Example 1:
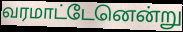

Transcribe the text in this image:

வரமாட்டேனென்று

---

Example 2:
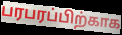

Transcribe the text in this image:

பரபரப்பிற்காக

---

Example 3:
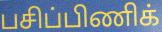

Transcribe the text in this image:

பசிப்பிணிக்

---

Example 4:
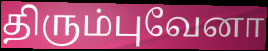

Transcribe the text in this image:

திரும்புவேனா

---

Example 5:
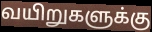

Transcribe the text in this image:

வயிறுகளுக்கு